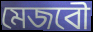
মেজবৌ